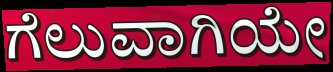
ಗೆಲುವಾಗಿಯೇ